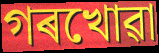
গৰখোৱা